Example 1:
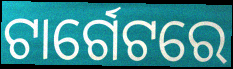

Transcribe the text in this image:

ଟାର୍ଗେଟରେ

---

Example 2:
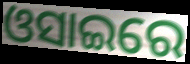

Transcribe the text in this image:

ଓସାଇରେ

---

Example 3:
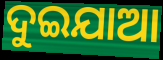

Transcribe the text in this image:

ଦୁଇଯାଆ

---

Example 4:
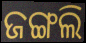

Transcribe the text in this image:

ଜଙ୍ଗଲି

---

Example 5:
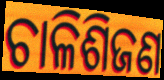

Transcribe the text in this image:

ଚାଳିଶିଜଣ